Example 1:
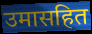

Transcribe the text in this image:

उमासहित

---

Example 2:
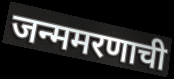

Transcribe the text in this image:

जन्ममरणाची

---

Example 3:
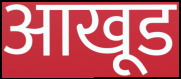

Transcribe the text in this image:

आखूड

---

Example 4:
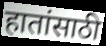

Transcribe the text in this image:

हातांसाठी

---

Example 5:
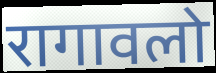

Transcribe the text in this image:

रागावलो